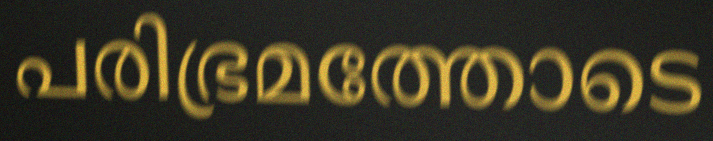
പരിഭ്രമത്തോടെ